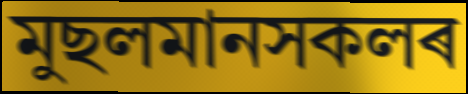
মুছলমানসকলৰ